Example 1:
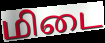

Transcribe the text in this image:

மிடை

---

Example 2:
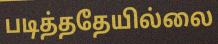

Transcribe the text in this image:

படித்ததேயில்லை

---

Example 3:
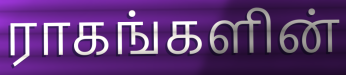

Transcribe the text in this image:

ராகங்களின்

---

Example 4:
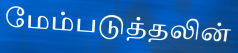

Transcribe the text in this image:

மேம்படுத்தலின்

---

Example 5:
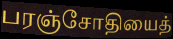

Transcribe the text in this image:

பரஞ்சோதியைத்